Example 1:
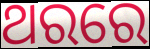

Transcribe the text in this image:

ଥରରେ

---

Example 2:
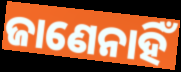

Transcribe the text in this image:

ଜାଣେନାହିଁ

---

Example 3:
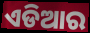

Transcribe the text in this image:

ଏଡିଆର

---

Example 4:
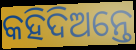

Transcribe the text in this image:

କହିଦିଅନ୍ତେ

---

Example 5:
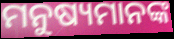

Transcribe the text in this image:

ମନୁଷ୍ୟମାନଙ୍କ